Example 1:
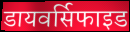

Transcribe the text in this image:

डायवर्सिफाइड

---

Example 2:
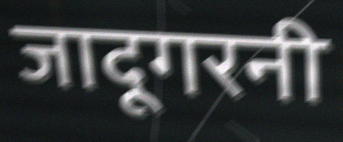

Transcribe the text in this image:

जादूगरनी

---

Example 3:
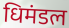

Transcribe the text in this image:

धिमंडल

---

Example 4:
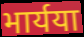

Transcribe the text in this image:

भार्यया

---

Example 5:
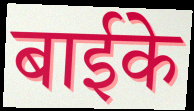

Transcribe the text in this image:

बाईके